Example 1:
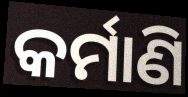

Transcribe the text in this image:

କର୍ମାଣି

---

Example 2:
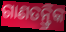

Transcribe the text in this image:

ଗାଣତନ୍ତ୍ରିକ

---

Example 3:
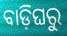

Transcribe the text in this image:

ବାଡ଼ିଘରୁ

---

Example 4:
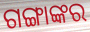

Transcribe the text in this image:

ଗଙ୍ଗାଙ୍କର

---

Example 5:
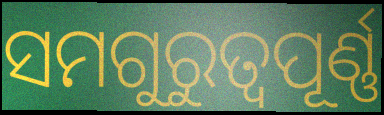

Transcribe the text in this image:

ସମଗୁରୁତ୍ଵପୂର୍ଣ୍ଣ